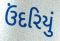
ઉંદરિયું